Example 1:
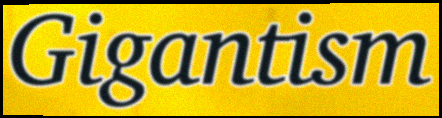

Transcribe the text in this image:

Gigantism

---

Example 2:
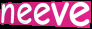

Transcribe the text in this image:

neeve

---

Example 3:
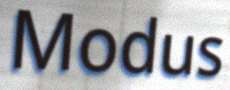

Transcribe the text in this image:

Modus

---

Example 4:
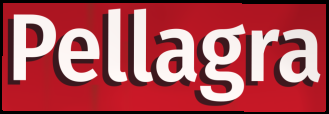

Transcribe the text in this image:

Pellagra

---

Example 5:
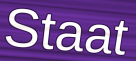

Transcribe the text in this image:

Staat